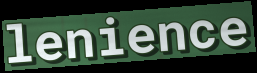
lenience